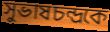
সুভাষচন্দ্রকে